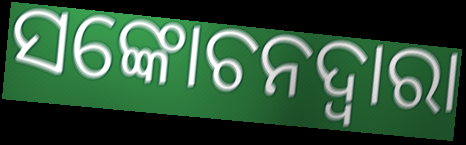
ସଙ୍କୋଚନଦ୍ୱାରା